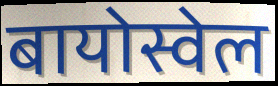
बायोस्वेल